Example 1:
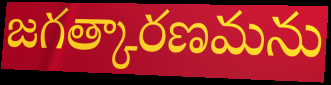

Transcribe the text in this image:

జగత్కారణమను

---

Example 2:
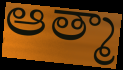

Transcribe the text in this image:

ఆత్మా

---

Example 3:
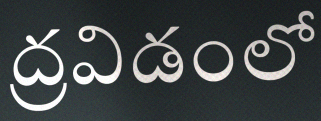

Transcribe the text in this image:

ద్రవిడంలో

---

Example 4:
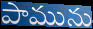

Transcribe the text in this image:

పామును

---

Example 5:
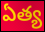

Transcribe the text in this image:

ఏత్య